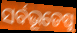
ସର୍ବଭୂତେଷୁ